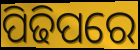
ପିଢିପରେ